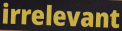
irrelevant